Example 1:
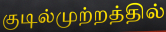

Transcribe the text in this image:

குடில்முற்றத்தில்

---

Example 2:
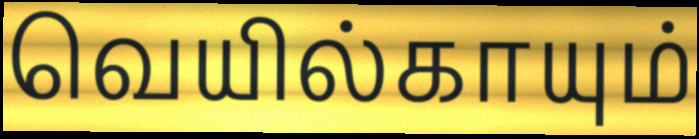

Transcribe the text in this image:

வெயில்காயும்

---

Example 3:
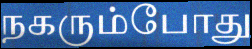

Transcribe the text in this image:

நகரும்போது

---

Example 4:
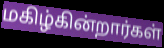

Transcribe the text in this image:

மகிழ்கின்றார்கள்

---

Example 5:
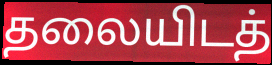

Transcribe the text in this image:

தலையிடத்